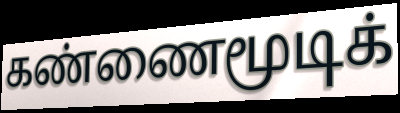
கண்ணைமூடிக்